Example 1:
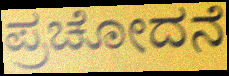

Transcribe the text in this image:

ಪ್ರಚೋದನೆ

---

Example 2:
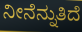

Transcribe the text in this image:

ನೀನೆನ್ನುತಿದೆ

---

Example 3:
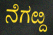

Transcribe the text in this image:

ನೆಗೞ್ದ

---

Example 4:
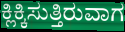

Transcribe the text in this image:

ಕ್ಲಿಕ್ಕಿಸುತ್ತಿರುವಾಗ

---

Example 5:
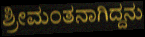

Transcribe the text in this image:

ಶ್ರೀಮಂತನಾಗಿದ್ದನು